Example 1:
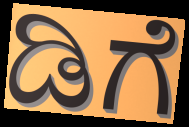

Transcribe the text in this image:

ಡಿಗೆ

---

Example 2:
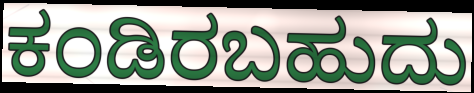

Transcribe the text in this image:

ಕಂಡಿರಬಹುದು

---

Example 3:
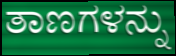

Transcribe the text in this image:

ತಾಣಗಳನ್ನು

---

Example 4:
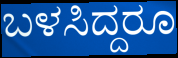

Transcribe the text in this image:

ಬಳಸಿದ್ದರೂ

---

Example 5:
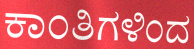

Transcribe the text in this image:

ಕಾಂತಿಗಳಿಂದ